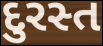
દુરસ્ત